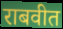
राबवीत